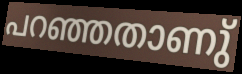
പറഞ്ഞതാണു്